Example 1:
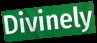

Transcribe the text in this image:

Divinely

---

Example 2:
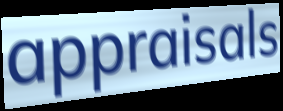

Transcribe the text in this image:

appraisals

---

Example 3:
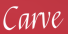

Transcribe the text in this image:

Carve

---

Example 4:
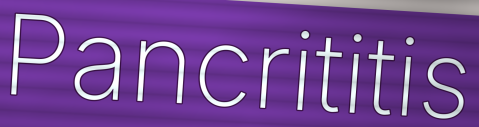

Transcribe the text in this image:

Pancrititis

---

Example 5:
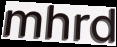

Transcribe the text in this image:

mhrd